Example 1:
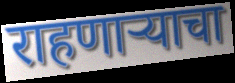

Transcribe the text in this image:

राहणाऱ्याचा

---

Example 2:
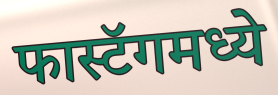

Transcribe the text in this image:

फास्टॅगमध्ये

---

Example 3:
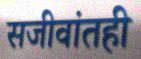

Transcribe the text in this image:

सजीवांतही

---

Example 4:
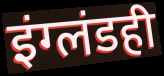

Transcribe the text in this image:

इंग्लंडही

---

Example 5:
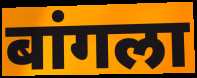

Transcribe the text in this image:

बांगला